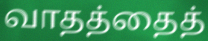
வாதத்தைத்